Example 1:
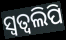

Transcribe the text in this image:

ସ୍ୱତ୍ୱଲିପି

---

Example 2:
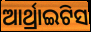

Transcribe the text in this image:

ଆର୍ଥ୍ରାଇଟିସ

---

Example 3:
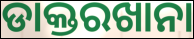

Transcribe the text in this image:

ଡାକ୍ତରଖାନା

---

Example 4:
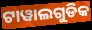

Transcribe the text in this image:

ଟାୱାଲଗୁଡିକ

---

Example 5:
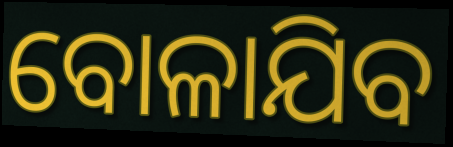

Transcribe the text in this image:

ବୋଳାଯିବ